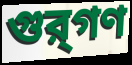
গুর্‌গণ